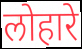
लोहारे